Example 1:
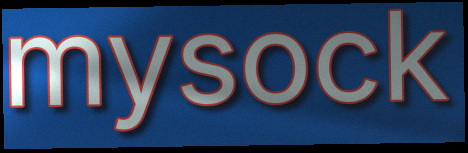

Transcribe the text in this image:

mysock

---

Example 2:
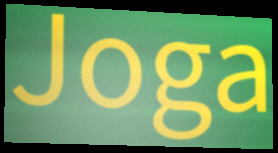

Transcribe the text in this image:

Joga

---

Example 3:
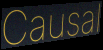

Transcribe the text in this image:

Causal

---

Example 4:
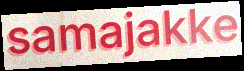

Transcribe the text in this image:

samajakke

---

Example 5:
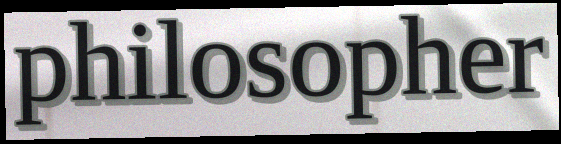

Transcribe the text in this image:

philosopher